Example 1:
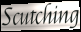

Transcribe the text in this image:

Scutching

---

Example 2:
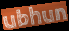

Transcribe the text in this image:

ubhun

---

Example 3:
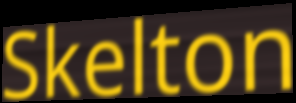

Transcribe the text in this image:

Skelton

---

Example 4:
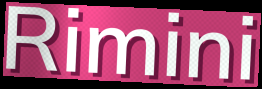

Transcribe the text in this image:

Rimini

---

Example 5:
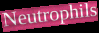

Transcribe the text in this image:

Neutrophils